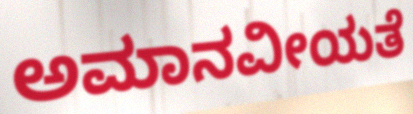
ಅಮಾನವೀಯತೆ